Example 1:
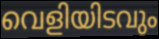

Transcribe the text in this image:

വെളിയിടവും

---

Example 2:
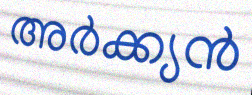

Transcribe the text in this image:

അർക്ക്യൻ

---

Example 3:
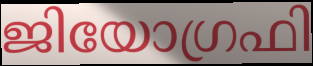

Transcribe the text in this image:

ജിയോഗ്രഫി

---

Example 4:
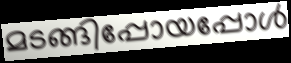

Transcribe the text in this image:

മടങ്ങിപ്പോയപ്പോൾ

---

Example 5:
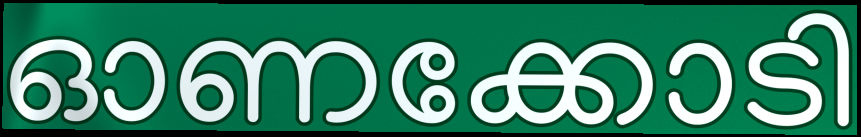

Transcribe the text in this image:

ഓണക്കോടി